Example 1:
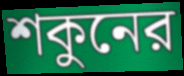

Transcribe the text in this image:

শকুনের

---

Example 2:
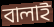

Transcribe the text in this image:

বালাই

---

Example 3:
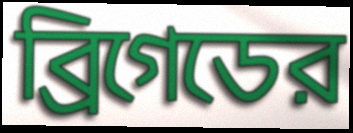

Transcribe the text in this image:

ব্রিগেডের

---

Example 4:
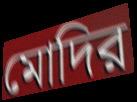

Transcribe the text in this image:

মোদির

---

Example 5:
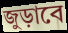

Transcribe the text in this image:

জুড়াবে